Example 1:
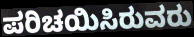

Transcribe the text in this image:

ಪರಿಚಯಿಸಿರುವರು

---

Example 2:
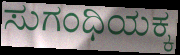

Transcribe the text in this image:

ಸುಗಂಧಿಯಕ್ಕ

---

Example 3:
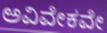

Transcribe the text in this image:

ಅವಿವೇಕವೇ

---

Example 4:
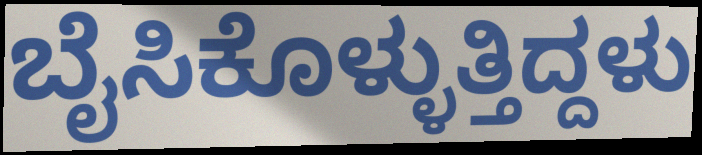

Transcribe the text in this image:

ಬೈಸಿಕೊಳ್ಳುತ್ತಿದ್ದಳು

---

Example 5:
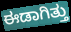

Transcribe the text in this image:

ಈಡಾಗಿತ್ತು